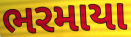
ભરમાયા